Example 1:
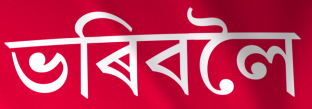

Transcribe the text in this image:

ভৰিবলৈ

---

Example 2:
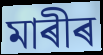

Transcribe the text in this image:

মাৰীৰ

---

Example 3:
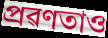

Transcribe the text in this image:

প্ৰৱণতাও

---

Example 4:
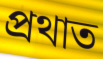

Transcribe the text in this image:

প্ৰথাত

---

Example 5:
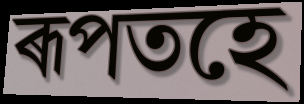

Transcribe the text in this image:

ৰূপতহে